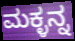
ಮಕ್ಳನ್ನ